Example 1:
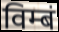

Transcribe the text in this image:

विम्बं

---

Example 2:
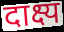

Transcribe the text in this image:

दाक्ष्य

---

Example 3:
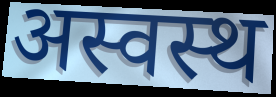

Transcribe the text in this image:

अस्वस्थ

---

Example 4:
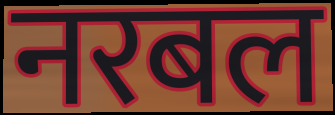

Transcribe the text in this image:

नरबल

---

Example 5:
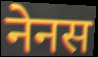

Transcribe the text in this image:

नेनस